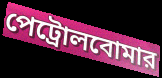
পেট্রোলবোমার